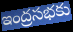
ఇంద్రసభకు